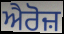
ਐਰੋਜ਼